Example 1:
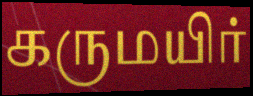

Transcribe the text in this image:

கருமயிர்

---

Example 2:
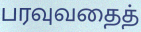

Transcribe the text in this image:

பரவுவதைத்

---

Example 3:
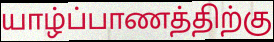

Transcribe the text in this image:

யாழ்ப்பாணத்திற்கு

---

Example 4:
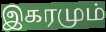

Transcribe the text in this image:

இகரமும்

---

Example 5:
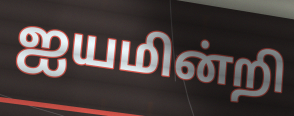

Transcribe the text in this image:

ஐயமின்றி